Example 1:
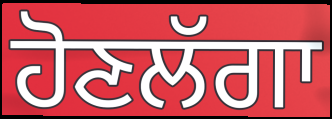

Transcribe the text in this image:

ਹੋਣਲੱਗਾ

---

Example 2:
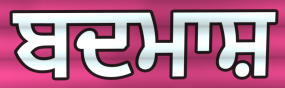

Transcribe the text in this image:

ਬਦਮਾਸ਼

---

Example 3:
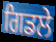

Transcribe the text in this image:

ਗਿਡਲੇ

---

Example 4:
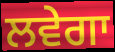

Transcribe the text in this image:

ਲਵੇਗਾ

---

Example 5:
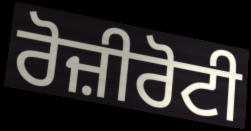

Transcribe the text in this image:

ਰੋਜ਼ੀਰੋਟੀ